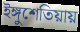
ইঙ্গুশেতিয়ায়